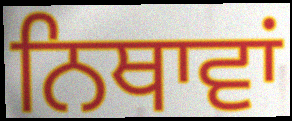
ਨਿਥਾਵਾਂ